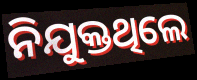
ନିଯୁକ୍ତଥିଲେ